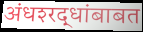
अंधश्रद्धांबाबत